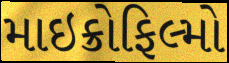
માઇક્રોફિલ્મો